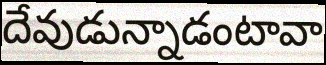
దేవుడున్నాడంటావా